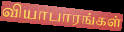
வியாபாரங்கள்